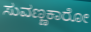
ಸುವಣ್ಣಕಾರೋ